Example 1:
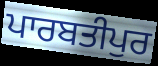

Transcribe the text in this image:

ਪਾਰਬਤੀਪੁਰ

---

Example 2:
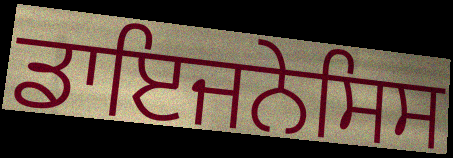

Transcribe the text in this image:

ਡਾਇਜਨੇਸਿਸ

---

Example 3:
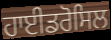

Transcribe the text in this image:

ਹਾਈਡਰੋਸਿਲ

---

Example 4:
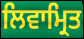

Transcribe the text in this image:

ਲਿਵਾਮ੍ਰਿਤ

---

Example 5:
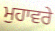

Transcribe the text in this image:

ਮੁਹਾਵਰੇ